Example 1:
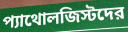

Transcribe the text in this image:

প্যাথোলজিস্টদের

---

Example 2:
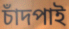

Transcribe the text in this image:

চাঁদপাই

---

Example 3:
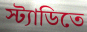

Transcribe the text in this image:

স্ট্যাডিতে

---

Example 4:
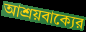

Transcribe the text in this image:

আশ্রয়বাক্যের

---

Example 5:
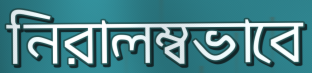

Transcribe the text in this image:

নিরালম্বভাবে